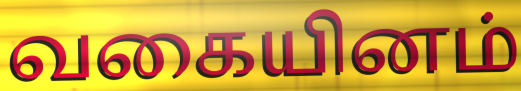
வகையினம்